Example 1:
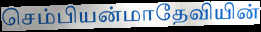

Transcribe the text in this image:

செம்பியன்மாதேவியின்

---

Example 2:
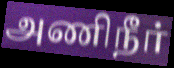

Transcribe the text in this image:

அணிநீர்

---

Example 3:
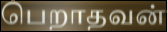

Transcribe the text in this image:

பெறாதவன்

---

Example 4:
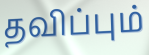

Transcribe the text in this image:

தவிப்பும்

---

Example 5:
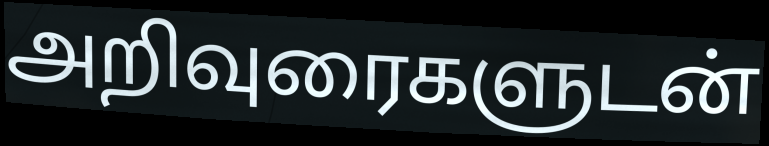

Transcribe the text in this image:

அறிவுரைகளுடன்